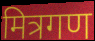
मित्रगण